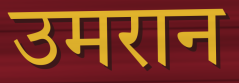
उमरान